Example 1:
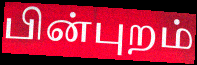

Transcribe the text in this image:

பின்புறம்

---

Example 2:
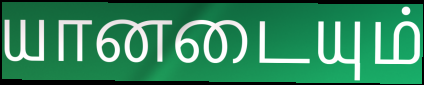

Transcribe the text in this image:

யானடையும்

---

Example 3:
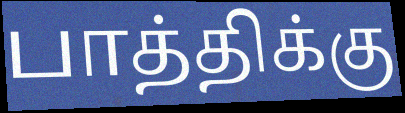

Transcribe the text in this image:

பாத்திக்கு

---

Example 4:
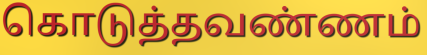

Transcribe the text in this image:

கொடுத்தவண்ணம்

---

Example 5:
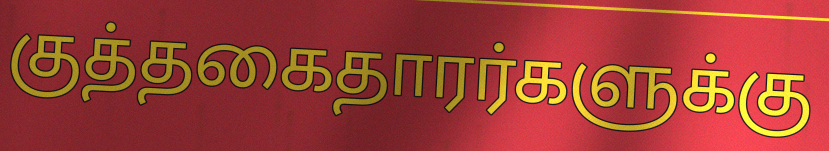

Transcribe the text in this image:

குத்தகைதாரர்களுக்கு